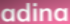
adina